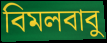
বিমলবাবু